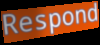
Respond